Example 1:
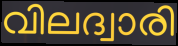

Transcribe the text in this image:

വിലദ്വാരി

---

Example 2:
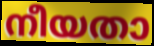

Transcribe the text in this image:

നീയതാ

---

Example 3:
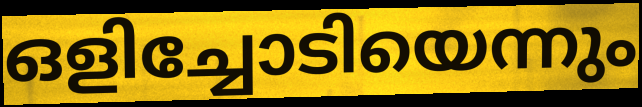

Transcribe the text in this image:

ഒളിച്ചോടിയെന്നും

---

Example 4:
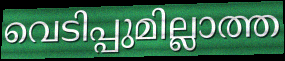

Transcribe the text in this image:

വെടിപ്പുമില്ലാത്ത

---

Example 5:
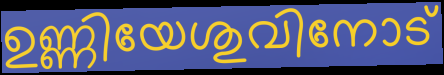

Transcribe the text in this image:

ഉണ്ണിയേശുവിനോട്